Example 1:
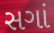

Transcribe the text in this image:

સગાં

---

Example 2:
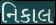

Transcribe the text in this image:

નિકાલ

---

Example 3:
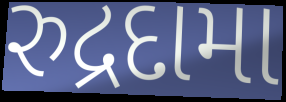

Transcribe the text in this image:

રુદ્રદામા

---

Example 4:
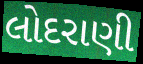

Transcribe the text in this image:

લોદરાણી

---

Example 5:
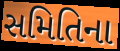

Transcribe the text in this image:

સમિતિના